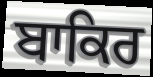
ਬਾਕਿਰ